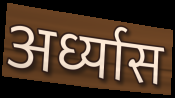
अर्ध्यास